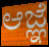
ಆಜ್ಞೆ